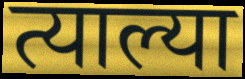
त्याल्या